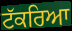
ਟੱਕਰਿਆ